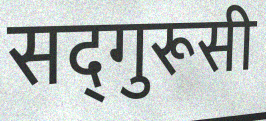
सद्‍गुरूसी